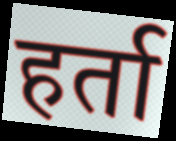
हर्ता